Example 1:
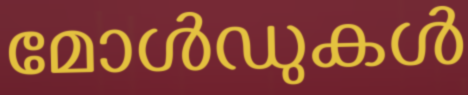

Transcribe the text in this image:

മോൾഡുകൾ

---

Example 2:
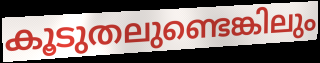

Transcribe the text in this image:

കൂടുതലുണ്ടെങ്കിലും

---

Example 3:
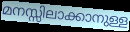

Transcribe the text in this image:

മനസ്സിലാക്കാനുള്ള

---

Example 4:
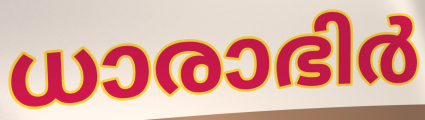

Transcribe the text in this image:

ധാരാഭിർ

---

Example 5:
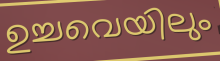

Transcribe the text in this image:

ഉച്ചവെയിലും